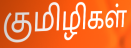
குமிழிகள்